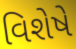
વિશેષે